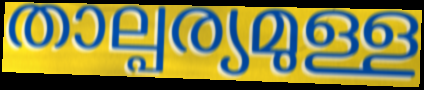
താല്പര്യമുള്ള